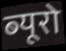
ब्‍यूरो